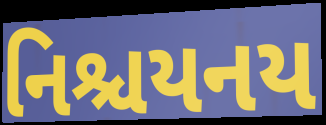
નિશ્ચયનય